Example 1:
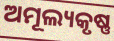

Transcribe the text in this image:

ଅମୂଲ୍ୟକୃଷ୍ଣ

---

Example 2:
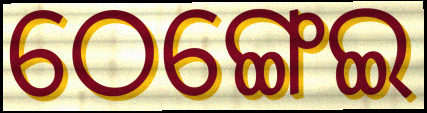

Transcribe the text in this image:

ଠେଙ୍ଗେଇ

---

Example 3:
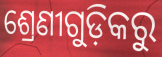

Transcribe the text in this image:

ଶ୍ରେଣୀଗୁଡ଼ିକରୁ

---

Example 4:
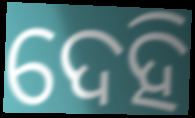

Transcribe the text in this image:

ଦେହି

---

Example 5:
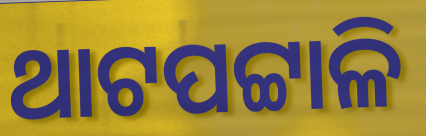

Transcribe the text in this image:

ଥାଟପଟ୍ଟାଳି